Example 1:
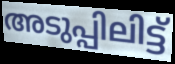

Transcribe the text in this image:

അടുപ്പിലിട്ട്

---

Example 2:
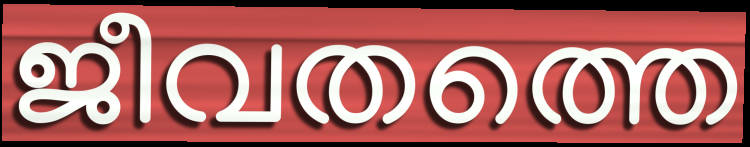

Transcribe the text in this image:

ജീവതത്തെ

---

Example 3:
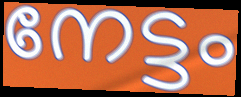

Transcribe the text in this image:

നേട്ടം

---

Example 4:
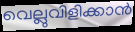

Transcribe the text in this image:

വെല്ലുവിളിക്കാൻ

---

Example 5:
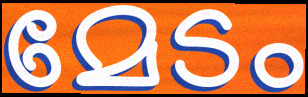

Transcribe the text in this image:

മേടം